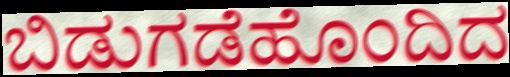
ಬಿಡುಗಡೆಹೊಂದಿದ